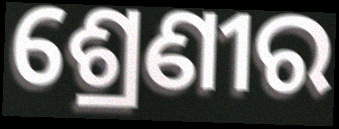
ଶ୍ରେଣୀର